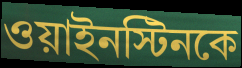
ওয়াইনস্টিনকে